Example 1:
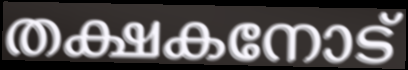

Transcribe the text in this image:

തക്ഷകനോട്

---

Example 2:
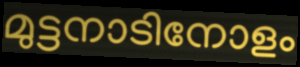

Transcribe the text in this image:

മുട്ടനാടിനോളം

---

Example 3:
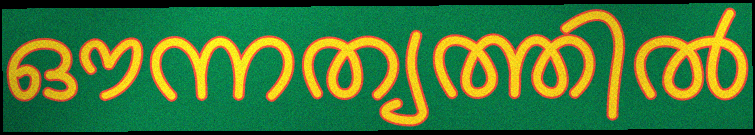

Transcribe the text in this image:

ഔന്നത്യത്തിൽ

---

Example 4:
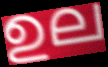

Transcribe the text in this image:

ഉല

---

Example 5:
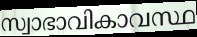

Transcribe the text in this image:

സ്വാഭാവികാവസ്ഥ